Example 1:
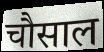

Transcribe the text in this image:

चौसाल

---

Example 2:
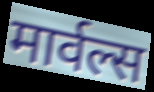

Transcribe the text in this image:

मार्वल्स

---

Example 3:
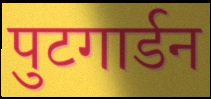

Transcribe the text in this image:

पुटगार्डन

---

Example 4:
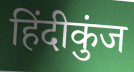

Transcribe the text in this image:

हिंदीकुंज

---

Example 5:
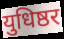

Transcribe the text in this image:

युधिष्ठर